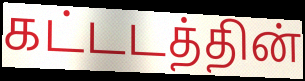
கட்டடத்தின்